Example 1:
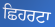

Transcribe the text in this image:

ਛਿਹਰਟਾ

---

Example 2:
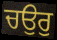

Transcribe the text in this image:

ਚਉਰੁ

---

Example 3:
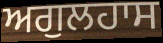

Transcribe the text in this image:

ਅਗੁਲਹਾਸ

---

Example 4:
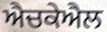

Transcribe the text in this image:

ਐਚਕੇਐਲ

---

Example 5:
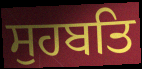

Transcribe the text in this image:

ਸੁਹਬਤਿ